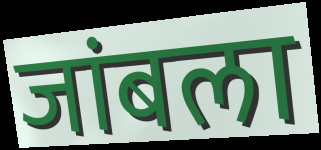
जांबला